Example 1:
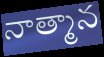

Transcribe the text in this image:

నాత్మాన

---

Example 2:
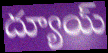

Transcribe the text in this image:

ద్యూయ్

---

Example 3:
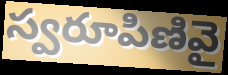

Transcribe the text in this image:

స్వరూపిణివై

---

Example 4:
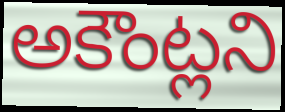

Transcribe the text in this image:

అకౌంట్లని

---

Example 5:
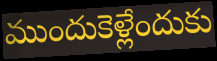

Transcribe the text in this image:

ముందుకెళ్లేందుకు